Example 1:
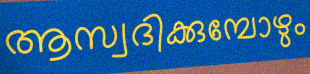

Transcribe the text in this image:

ആസ്വദിക്കുമ്പോഴും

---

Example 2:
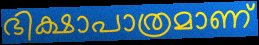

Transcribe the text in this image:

ഭിക്ഷാപാത്രമാണ്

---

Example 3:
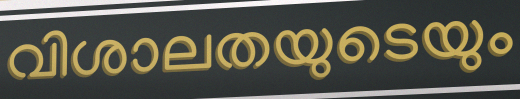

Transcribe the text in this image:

വിശാലതയുടെയും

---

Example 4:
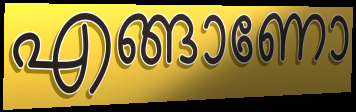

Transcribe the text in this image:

എങ്ങാണോ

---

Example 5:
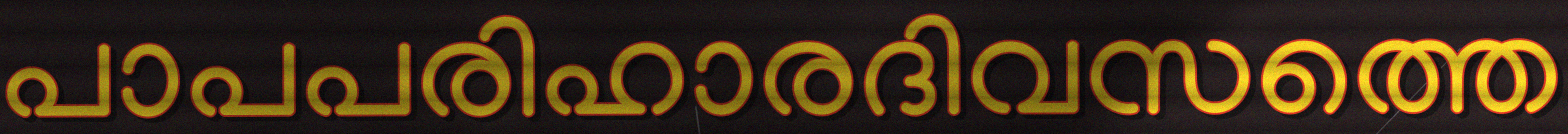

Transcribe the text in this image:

പാപപരിഹാരദിവസത്തെ